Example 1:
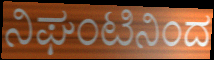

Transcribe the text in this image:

ನಿಘಂಟಿನಿಂದ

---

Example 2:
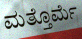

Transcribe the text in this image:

ಮತ್ತೊರ್ಮೆ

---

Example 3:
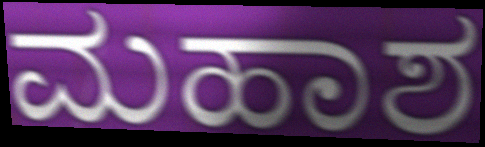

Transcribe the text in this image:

ಮಹಾಶ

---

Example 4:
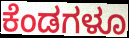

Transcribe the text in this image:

ಕೆಂಡಗಳೂ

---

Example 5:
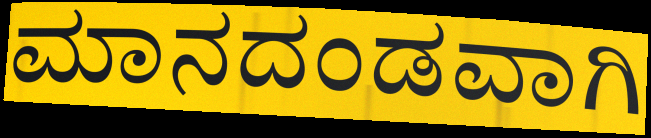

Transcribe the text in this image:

ಮಾನದಂಡವಾಗಿ